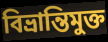
বিভ্রান্তিমুক্ত